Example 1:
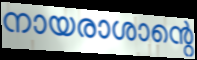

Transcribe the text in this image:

നായരാശാന്റെ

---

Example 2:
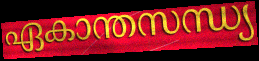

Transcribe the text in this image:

ഏകാന്തസന്ധ്യ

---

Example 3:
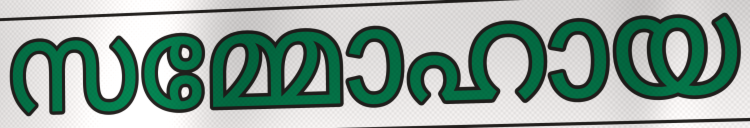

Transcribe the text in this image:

സമ്മോഹായ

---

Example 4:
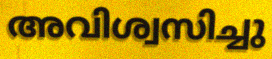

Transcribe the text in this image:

അവിശ്വസിച്ചു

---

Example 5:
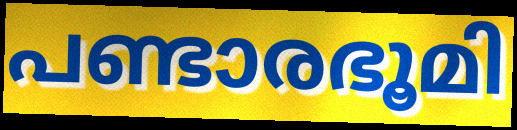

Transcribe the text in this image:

പണ്ടാരഭൂമി